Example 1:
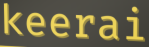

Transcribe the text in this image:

keerai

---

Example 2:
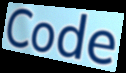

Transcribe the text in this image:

Code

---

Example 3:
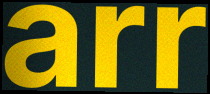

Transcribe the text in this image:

arr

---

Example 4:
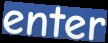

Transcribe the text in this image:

enter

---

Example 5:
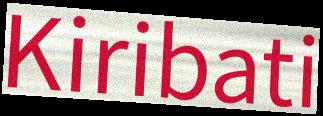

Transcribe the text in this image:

Kiribati